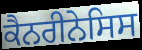
ਕੈਨਰੀਨੇਸਿਸ